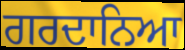
ਗਰਦਾਨਿਆ